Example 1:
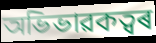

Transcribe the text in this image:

অভিভাৱকত্বৰ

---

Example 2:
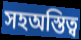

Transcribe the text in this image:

সহঅস্তিত্ব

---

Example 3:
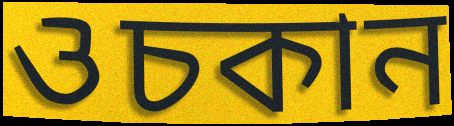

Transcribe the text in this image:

ওচকান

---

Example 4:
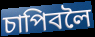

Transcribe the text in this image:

চাপিবলৈ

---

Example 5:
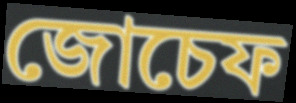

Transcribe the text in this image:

জোচেফ